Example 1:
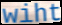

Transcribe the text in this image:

wiht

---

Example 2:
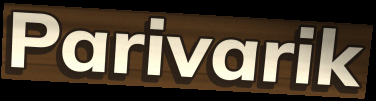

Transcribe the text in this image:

Parivarik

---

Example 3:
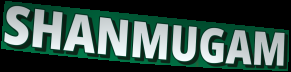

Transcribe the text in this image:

SHANMUGAM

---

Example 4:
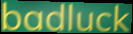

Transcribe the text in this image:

badluck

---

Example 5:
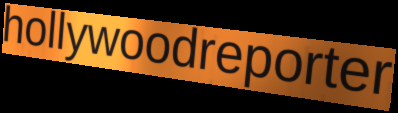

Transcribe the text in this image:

hollywoodreporter